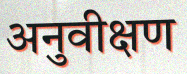
अनुवीक्षण